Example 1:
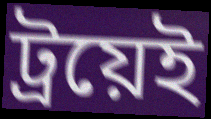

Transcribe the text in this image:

ট্রয়েই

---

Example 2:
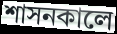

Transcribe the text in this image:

শাসনকালে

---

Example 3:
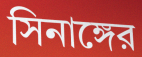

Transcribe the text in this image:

সিনাঙ্গের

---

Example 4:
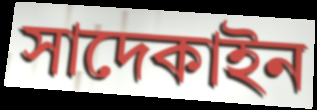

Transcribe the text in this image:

সাদেকাইন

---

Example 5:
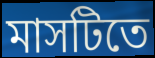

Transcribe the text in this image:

মাসটিতে